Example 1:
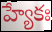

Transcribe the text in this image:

హ్యేకః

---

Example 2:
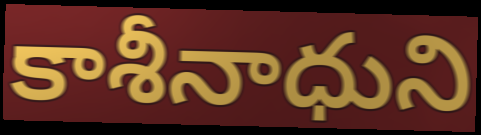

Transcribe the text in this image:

కాశీనాధుని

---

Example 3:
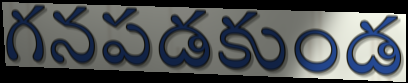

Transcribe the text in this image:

గనపడకుండ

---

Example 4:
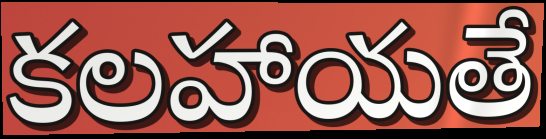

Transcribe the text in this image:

కలహాయతే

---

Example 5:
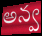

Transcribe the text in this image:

అన్వ